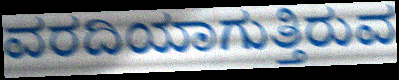
ವರದಿಯಾಗುತ್ತಿರುವ